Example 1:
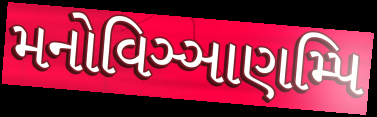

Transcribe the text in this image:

મનોવિઞ્ઞાણમ્પિ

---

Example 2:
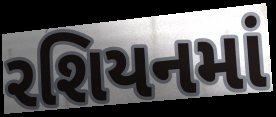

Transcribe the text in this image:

રશિયનમાં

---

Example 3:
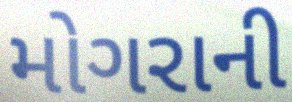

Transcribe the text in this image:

મોગરાની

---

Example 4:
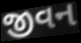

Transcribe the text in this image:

જીવન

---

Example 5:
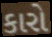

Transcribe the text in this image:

કારો